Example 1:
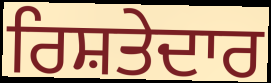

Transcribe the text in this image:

ਰਿਸ਼ਤੇਦਾਰ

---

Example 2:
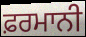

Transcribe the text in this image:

ਫ਼ਰਮਾਨੀ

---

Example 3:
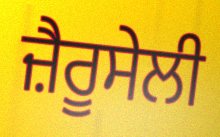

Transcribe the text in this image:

ਜ਼ੈਰੂਸੇਲੀ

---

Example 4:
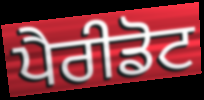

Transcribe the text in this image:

ਪੈਰੀਡੋਟ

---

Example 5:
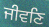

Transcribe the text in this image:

ਜੀਵਣਿ